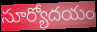
సూర్యోదయం